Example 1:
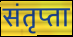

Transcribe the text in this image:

संतृप्ता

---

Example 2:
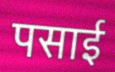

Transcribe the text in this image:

पसाई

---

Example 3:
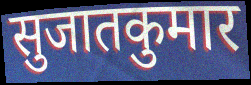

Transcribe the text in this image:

सुजातकुमार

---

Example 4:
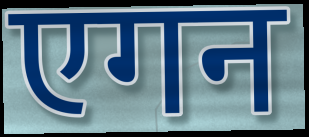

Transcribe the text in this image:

एगन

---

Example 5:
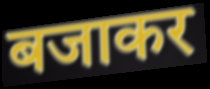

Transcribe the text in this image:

बजाकर